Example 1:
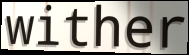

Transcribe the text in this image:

wither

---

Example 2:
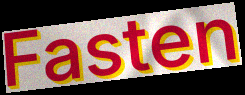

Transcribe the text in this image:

Fasten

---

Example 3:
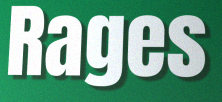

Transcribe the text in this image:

Rages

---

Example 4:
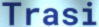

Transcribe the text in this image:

Trasi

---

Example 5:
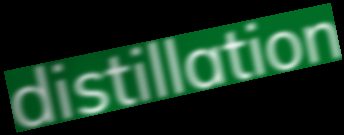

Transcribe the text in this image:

distillation